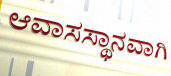
ಆವಾಸಸ್ಥಾನವಾಗಿ